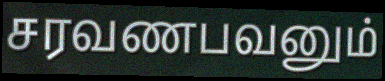
சரவணபவனும்